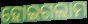
ହୋଇଗଲାମ